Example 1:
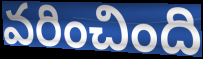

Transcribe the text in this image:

వరించింది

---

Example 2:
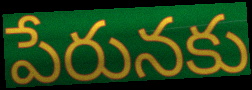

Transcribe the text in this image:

పేరునకు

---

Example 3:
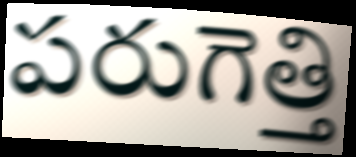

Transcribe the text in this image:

పరుగెత్తి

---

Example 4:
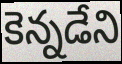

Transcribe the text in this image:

కెన్నడేని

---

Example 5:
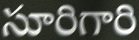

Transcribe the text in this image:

సూరిగారి